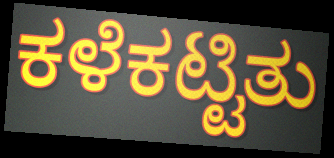
ಕಳೆಕಟ್ಟಿತು